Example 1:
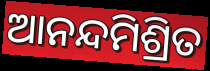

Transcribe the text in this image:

ଆନନ୍ଦମିଶ୍ରିତ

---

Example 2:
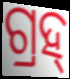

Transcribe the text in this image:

ଗ୍ରହ୍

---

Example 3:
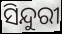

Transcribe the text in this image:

ସିନ୍ଦୁରୀ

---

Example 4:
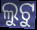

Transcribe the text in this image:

ଲୁଟୁ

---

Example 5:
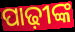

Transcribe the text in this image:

ପାଢ଼ୀଙ୍କ